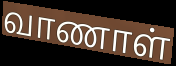
வாணாள்